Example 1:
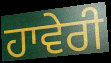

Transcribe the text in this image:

ਹਾਵੇਰੀ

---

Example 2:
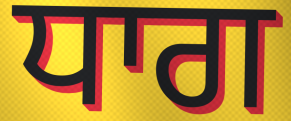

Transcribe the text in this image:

ਧਾਗ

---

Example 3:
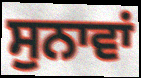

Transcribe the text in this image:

ਸੁਨਾਵਾਂ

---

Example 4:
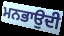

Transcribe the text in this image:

ਮਨਭਾਉਦੀ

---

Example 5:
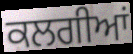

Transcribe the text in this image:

ਕਲਗੀਆਂ